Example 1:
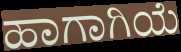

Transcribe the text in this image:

ಹಾಗಾಗಿಯೆ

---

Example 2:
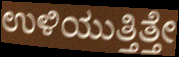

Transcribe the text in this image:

ಉಳಿಯುತ್ತಿತ್ತೇ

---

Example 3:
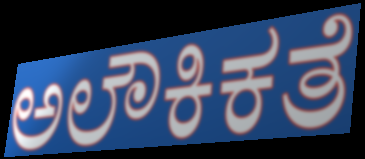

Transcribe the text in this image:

ಅಲೌಕಿಕತೆ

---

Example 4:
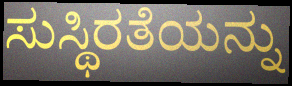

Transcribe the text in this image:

ಸುಸ್ಥಿರತೆಯನ್ನು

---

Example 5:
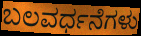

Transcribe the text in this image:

ಬಲವರ್ಧನೆಗಳು